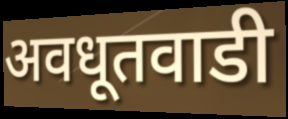
अवधूतवाडी